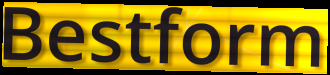
Bestform